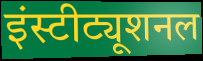
इंस्टीट्यूशनल